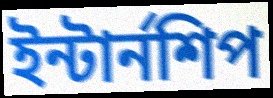
ইন্টার্নশিপ